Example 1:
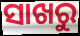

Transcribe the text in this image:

ସାଖରୁ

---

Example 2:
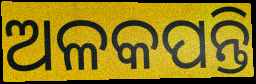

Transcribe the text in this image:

ଅଳକପନ୍ତି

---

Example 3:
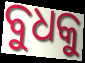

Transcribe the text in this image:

ବୁଧକୁ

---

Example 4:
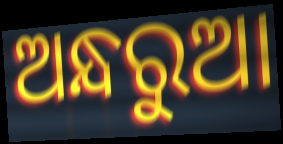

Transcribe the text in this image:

ଅନ୍ଧରୁଆ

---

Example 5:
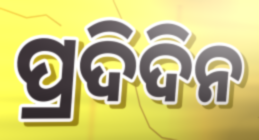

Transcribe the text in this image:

ପ୍ରଦିଦିନ